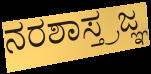
ನರಶಾಸ್ತ್ರಜ್ಞ